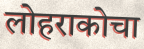
लोहराकोचा